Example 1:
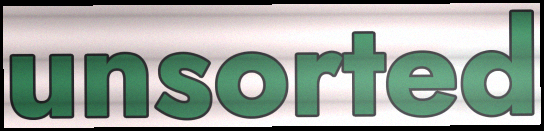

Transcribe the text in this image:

unsorted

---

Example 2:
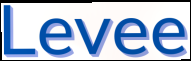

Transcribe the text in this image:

Levee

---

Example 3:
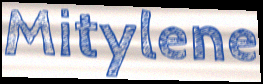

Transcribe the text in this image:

Mitylene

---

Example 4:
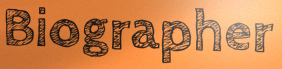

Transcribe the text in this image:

Biographer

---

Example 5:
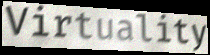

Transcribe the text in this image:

Virtuality